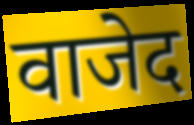
वाजेद